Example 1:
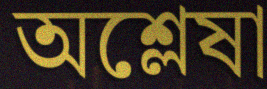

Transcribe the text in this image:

অশ্লেষা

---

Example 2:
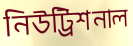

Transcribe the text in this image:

নিউট্রিশনাল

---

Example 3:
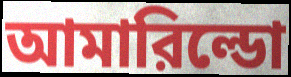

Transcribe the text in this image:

আমারিল্ডো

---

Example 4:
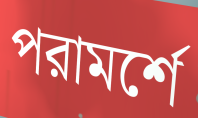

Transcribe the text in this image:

পরামর্শে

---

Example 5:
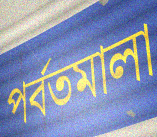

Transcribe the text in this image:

পর্বতমালা